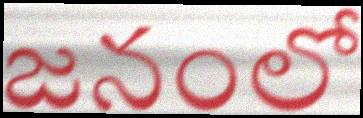
జనంలో